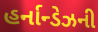
હર્નાન્ડેઝની